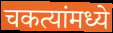
चकत्यांमध्ये